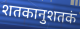
शतकानुशतकं